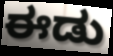
ಈಡು